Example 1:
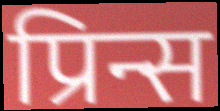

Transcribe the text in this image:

प्रिन्स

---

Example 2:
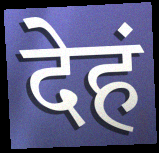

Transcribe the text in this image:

देहं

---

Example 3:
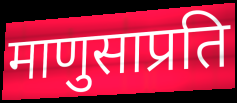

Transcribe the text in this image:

माणुसाप्रति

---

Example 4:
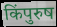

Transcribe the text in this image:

किंपुरुष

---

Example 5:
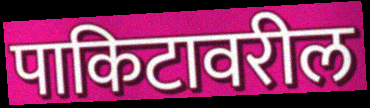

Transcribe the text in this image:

पाकिटावरील